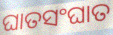
ଘାତସଂଘାତ